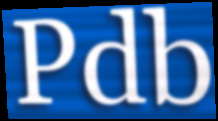
Pdb